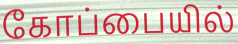
கோப்பையில்